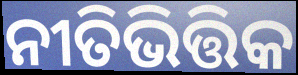
ନୀତିଭିତ୍ତିକ